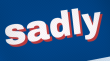
sadly